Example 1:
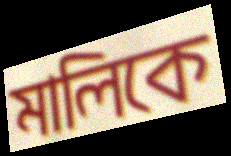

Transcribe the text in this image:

মালিকে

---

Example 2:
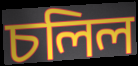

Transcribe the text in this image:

চলিল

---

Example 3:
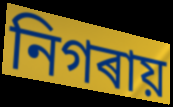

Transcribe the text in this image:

নিগৰায়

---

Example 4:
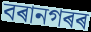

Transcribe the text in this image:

বৰানগৰৰ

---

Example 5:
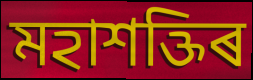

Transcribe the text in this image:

মহাশক্তিৰ